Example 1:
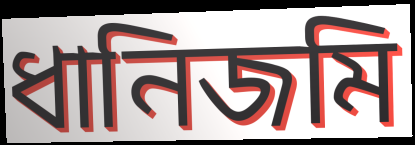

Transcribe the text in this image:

ধানিজমি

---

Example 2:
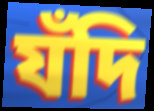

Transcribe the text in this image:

যঁদি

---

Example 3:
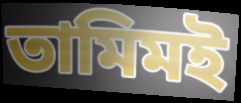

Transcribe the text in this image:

তামিমই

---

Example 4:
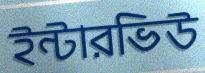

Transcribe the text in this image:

ইন্টারভিউ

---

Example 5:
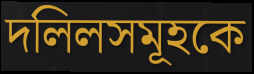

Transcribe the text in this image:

দলিলসমূহকে